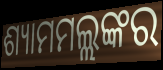
ଶ୍ୟାମମଲ୍ଲଙ୍କର